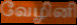
வேழினி